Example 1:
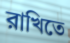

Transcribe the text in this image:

রাখিতে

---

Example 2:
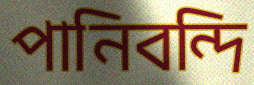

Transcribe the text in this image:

পানিবন্দি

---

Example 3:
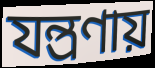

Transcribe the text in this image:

যন্ত্রণায়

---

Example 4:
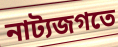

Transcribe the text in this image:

নাট্যজগতে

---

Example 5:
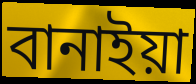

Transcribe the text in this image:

বানাইয়া